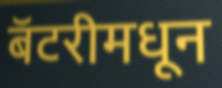
बॅटरीमधून